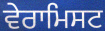
ਵੇਰਾਮਿਸਟ